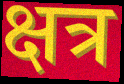
क्षत्र